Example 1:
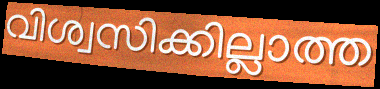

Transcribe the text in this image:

വിശ്വസിക്കില്ലാത്ത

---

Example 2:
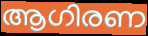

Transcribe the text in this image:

ആഗിരണ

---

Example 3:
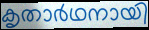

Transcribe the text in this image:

കൃതാർഥനായി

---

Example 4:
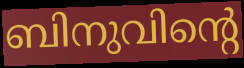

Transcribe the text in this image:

ബിനുവിന്റെ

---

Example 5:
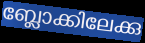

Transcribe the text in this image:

ബ്ലോക്കിലേക്കു